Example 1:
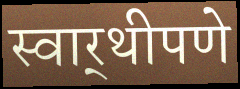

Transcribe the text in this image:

स्वार्थीपणे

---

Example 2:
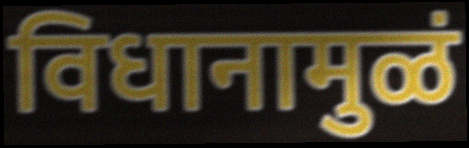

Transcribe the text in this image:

विधानामुळं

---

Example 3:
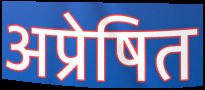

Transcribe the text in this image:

अप्रेषित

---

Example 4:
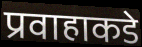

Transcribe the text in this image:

प्रवाहाकडे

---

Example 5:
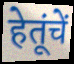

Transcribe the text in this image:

हेतूंचें